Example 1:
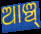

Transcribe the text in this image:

ଆଞ୍ଚ୍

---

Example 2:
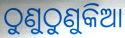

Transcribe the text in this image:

ଠୁଣୁଠୁଣୁକିଆ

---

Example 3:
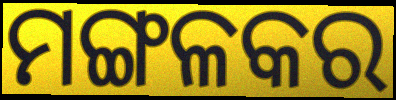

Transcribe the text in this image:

ମଙ୍ଗଳକର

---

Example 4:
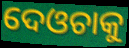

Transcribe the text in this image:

ଦେଓଚାକୁ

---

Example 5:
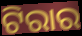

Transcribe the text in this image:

ଟିରାର